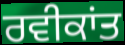
ਰਵੀਕਾਂਤ